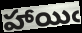
హాయిఁ